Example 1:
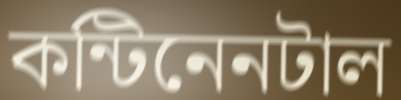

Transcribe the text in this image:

কন্টিনেনটাল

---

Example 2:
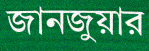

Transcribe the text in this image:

জানজুয়ার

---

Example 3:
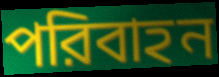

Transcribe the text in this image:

পরিবাহন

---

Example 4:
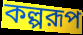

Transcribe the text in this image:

কল্পরূপ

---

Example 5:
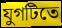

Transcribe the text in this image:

যুগটিতে